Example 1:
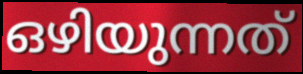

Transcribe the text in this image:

ഒഴിയുന്നത്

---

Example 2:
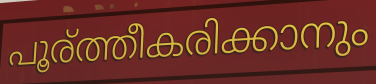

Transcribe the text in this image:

പൂര്ത്തീകരിക്കാനും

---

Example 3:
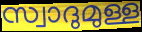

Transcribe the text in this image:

സ്വാദുമുള്ള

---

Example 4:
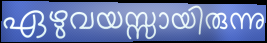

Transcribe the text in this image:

ഏഴുവയസ്സായിരുന്നു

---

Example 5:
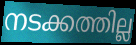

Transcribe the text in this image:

നടക്കത്തില്ല